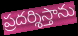
ప్రదర్శిస్తాను